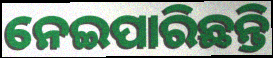
ନେଇପାରିଛନ୍ତି